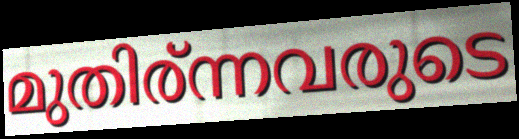
മുതിര്ന്നവരുടെ